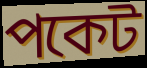
পকেট